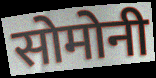
सोमोनी